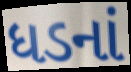
ધડનાં